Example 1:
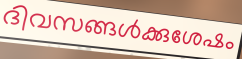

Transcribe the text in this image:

ദിവസങ്ങൾക്കുശേഷം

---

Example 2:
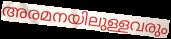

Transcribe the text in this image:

അരമനയിലുള്ളവരും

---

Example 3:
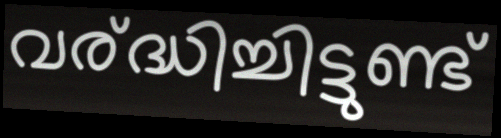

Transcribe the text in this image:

വര്ദ്ധിച്ചിട്ടുണ്ട്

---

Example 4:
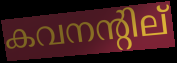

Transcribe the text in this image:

കവനന്റില്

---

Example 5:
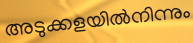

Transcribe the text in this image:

അടുക്കളയിൽനിന്നും